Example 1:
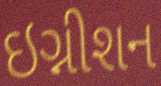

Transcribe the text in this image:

ઇગ્નીશન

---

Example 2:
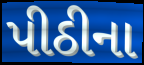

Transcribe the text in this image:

પીઠીના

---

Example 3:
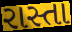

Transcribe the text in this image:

રાસ્તા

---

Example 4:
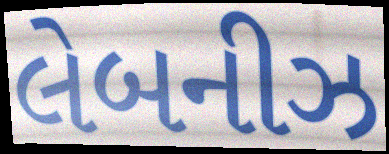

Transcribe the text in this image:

લેબનીઝ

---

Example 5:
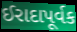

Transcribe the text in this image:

ઈરાદાપૂર્વક